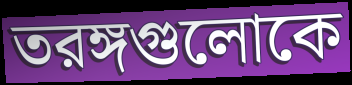
তরঙ্গগুলোকে